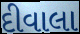
દીવાલા